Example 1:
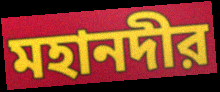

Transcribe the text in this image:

মহানদীর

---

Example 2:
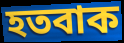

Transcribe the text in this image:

হতবাক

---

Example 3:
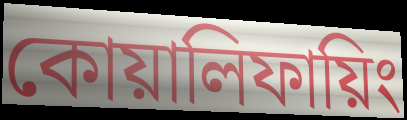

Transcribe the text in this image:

কোয়ালিফায়িং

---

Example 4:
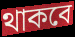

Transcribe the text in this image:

থাকবে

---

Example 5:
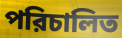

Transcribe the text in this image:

পরিচালিত